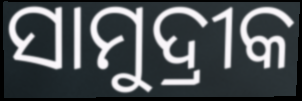
ସାମୁଦ୍ରୀକ